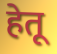
हेतू